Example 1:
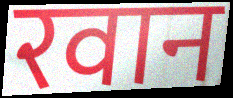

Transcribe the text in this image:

रवान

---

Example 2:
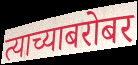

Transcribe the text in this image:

त्याच्याबरोबर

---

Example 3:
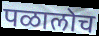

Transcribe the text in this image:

पळालोच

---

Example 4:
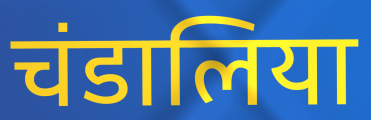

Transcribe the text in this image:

चंडालिया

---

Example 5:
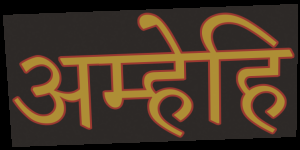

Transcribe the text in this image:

अम्हेहि